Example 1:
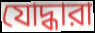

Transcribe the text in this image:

যোদ্ধারা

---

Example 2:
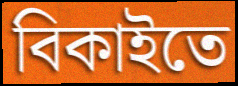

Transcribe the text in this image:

বিকাইতে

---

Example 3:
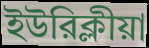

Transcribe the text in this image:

ইউরিক্লীয়া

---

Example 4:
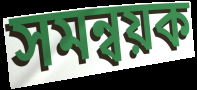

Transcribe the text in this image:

সমন্বয়ক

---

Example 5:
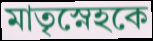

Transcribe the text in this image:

মাতৃস্নেহকে